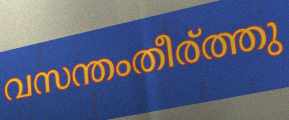
വസന്തംതീര്ത്തു